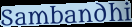
Sambandhi